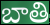
బాతి